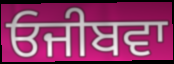
ਓਜੀਬਵਾ